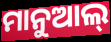
ମାନୁଆଲ୍